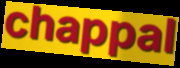
chappal